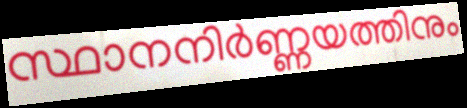
സ്ഥാനനിർണ്ണയത്തിനും